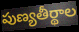
పుణ్యతీర్థాల